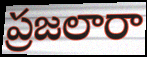
ప్రజలారా